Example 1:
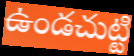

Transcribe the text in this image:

ఉండచుట్టి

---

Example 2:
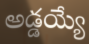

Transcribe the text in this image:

అడ్డయ్యే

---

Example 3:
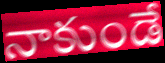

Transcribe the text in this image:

నాకుండే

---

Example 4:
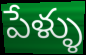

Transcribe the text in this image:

పేళ్ళు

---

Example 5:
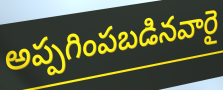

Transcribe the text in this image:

అప్పగింపబడినవారై